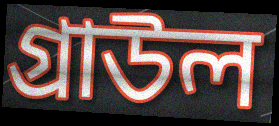
গ্রাউল